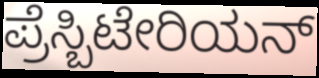
ಪ್ರೆಸ್ಬಿಟೇರಿಯನ್